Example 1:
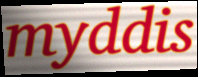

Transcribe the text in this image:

myddis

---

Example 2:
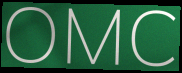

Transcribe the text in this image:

OMC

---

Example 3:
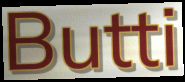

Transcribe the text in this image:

Butti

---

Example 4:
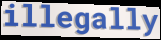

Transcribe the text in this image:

illegally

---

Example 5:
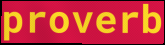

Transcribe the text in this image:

proverb